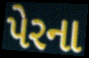
પેરના